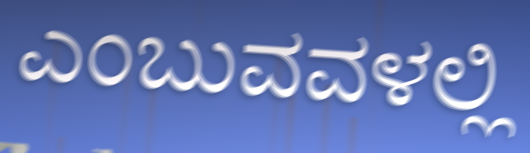
ಎಂಬುವವಳಲ್ಲಿ